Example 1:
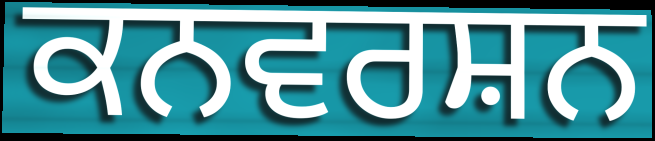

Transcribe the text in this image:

ਕਨਵਰਸ਼ਨ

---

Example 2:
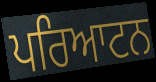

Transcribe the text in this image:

ਪਰਿਆਟਨ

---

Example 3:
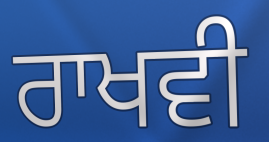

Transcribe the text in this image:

ਰਾਖਵੀ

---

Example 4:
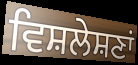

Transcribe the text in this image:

ਵਿਸ਼ਲੇਸ਼ਣਾਂ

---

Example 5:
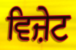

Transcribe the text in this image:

ਵਿਜ਼ੇਟ